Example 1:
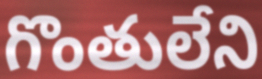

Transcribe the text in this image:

గొంతులేని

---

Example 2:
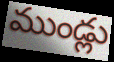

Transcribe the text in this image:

ముండ్లు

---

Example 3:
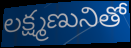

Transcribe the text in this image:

లక్ష్మణునితో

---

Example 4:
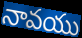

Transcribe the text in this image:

నావయు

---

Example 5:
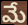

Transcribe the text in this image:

మే